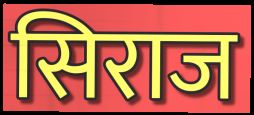
सिराज